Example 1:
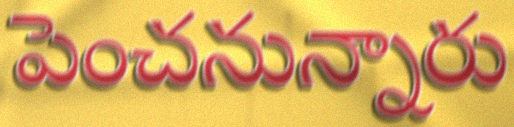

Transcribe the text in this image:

పెంచనున్నారు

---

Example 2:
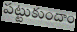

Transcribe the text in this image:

పట్టుకుందాం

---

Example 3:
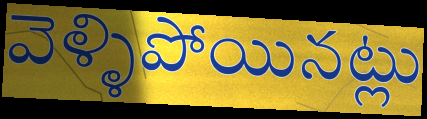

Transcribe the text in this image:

వెళ్ళిపోయినట్లు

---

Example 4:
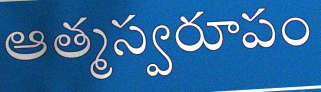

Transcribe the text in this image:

ఆత్మస్వరూపం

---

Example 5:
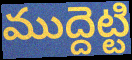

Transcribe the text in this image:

ముద్దెట్టి